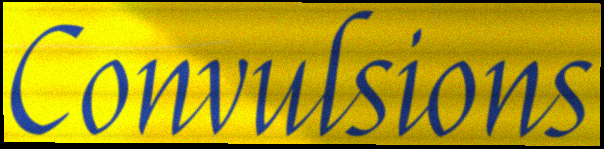
Convulsions